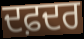
ਦਫ਼ਦਰ